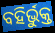
ବହିର୍ଭୁକ୍ତ